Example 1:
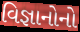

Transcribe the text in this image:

વિજ્ઞાનોનો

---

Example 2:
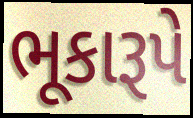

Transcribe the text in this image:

ભૂકારૂપે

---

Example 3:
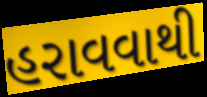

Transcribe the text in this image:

હરાવવાથી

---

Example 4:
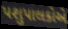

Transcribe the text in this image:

પશુપાલકોએ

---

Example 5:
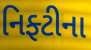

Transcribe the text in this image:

નિફ્ટીના